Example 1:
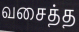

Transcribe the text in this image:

வசைத்த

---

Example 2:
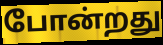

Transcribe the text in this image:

போன்றது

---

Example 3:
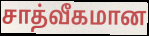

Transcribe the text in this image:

சாத்வீகமான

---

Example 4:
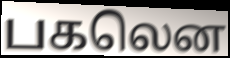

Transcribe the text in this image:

பகலென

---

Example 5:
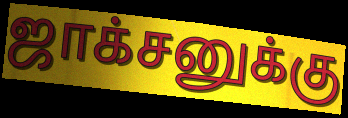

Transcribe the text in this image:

ஜாக்சனுக்கு